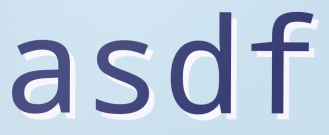
asdf